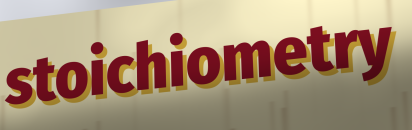
stoichiometry